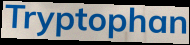
Tryptophan